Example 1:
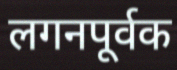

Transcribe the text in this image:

लगनपूर्वक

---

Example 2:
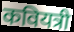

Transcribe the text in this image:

कवियत्री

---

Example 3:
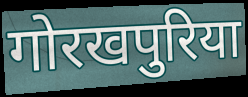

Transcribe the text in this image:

गोरखपुरिया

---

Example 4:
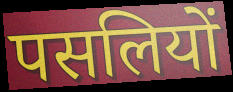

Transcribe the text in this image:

पसलियों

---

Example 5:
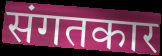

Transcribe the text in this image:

संगतकार